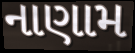
નાણામ